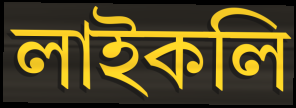
লাইকলি